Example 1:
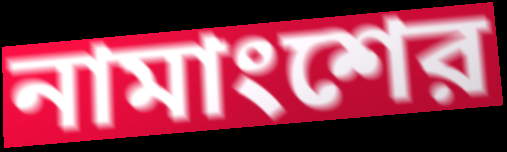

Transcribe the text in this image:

নামাংশের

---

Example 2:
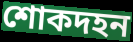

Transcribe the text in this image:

শোকদহন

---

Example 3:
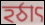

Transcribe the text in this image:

হঠাৎ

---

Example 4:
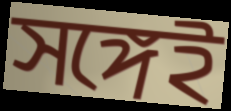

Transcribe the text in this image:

সঙ্গেই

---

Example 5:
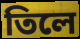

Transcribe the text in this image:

তিলে